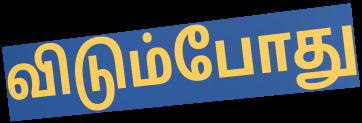
விடும்போது